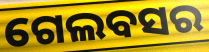
ଗେଲବସର